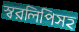
স্বরলিপিসহ